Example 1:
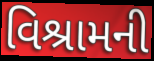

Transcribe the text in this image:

વિશ્રામની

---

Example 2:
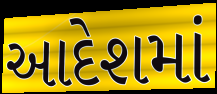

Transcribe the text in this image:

આદેશમાં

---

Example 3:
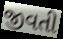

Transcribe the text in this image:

જીવતી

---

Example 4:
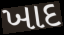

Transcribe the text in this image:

ખાદ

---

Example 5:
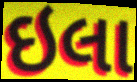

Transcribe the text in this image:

ઇલા